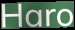
Haro